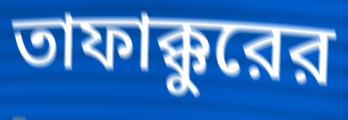
তাফাক্কুরের